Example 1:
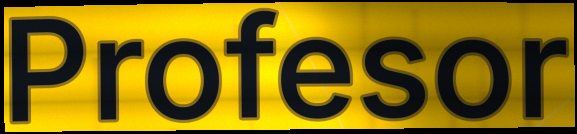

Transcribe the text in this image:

Profesor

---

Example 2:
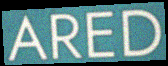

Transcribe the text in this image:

ARED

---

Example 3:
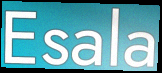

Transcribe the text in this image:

Esala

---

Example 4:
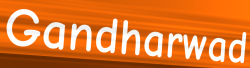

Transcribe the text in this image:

Gandharwad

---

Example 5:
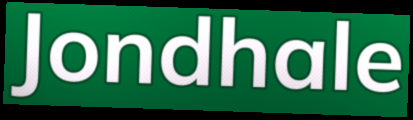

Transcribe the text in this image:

Jondhale